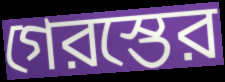
গেরস্তের